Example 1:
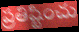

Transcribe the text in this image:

ప్రతిష్టించు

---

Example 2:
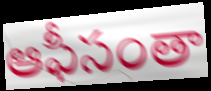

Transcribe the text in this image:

ఆఫీసంతా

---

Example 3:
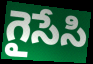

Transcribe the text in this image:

గైసేసి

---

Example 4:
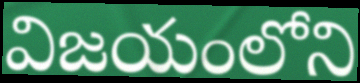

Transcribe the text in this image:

విజయంలోని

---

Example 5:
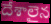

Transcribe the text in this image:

దేశాలైన